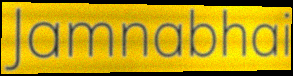
Jamnabhai